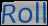
Roll